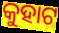
କୁହାଟ